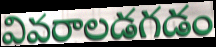
వివరాలడగడం